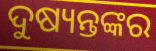
ଦୁଷ୍ୟନ୍ତଙ୍କର